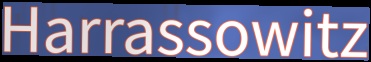
Harrassowitz